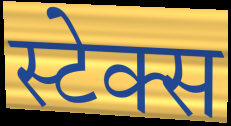
स्टेक्स